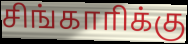
சிங்காரிக்கு